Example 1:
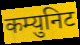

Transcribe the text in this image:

कम्युनिट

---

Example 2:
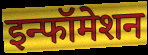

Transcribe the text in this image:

इन्फॉमेशन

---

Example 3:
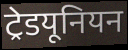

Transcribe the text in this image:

ट्रेडयूनियन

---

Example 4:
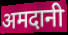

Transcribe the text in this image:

अमदानी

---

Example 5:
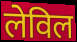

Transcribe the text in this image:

लेविल